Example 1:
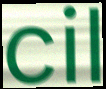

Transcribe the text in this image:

cil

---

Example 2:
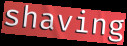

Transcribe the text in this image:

shaving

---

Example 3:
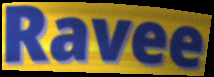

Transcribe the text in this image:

Ravee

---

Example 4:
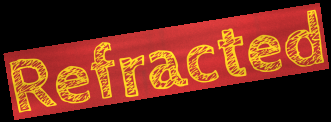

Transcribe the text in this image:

Refracted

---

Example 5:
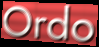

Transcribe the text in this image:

Ordo